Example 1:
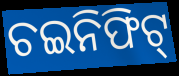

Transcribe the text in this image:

ଚଇନିଫିଟ୍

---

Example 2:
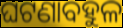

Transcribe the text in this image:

ଘଟଣାବହୁଳ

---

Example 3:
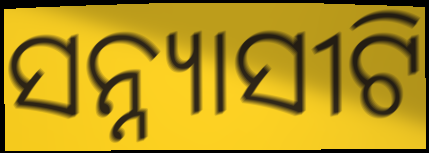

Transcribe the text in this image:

ସନ୍ନ୍ୟାସୀଟି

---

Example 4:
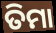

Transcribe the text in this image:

ତିମା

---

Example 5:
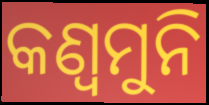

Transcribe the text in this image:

କଣ୍ୱମୁନି